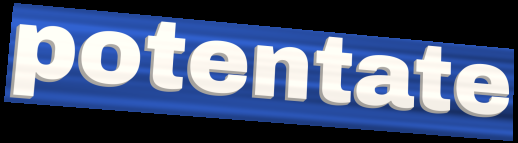
potentate